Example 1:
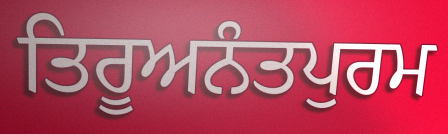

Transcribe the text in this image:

ਤਿਰੂਅਨੰਤਪੁਰਮ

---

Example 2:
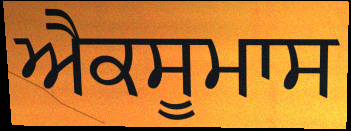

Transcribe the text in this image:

ਐਕਸੂਮਾਸ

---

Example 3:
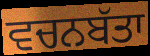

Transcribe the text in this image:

ਵਚਨਬੱਤਾ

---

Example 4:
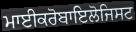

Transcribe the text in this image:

ਮਾਈਕਰੋਬਾਇਲੋਜਿਸਟ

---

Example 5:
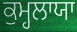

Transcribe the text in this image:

ਕੁਮ੍ਹਲਾਯਾ